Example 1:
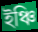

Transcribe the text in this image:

ইঞ্চি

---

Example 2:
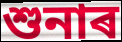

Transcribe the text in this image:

শুনাৰ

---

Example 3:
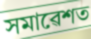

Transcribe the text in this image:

সমাৱেশত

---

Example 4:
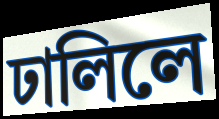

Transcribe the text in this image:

ঢালিলে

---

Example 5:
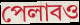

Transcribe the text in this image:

পেলাবও